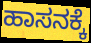
ಹಾಸನಕ್ಕೆ